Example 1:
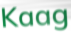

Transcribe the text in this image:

Kaag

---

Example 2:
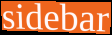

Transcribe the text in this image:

sidebar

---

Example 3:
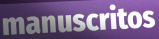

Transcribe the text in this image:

manuscritos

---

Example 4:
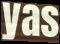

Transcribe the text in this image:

yas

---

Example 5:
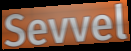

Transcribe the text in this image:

Sevvel